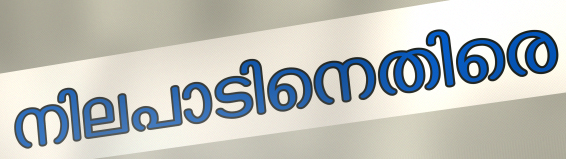
നിലപാടിനെതിരെ